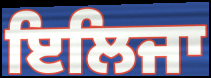
ਇਲਿਜਾ